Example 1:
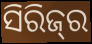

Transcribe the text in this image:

ସିରିଜ୍‌ର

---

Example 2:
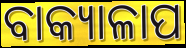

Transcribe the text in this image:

ବାକ୍ୟାଳାପ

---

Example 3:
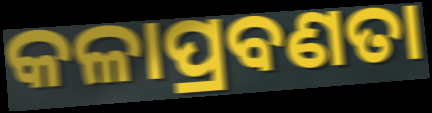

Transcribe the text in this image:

କଳାପ୍ରବଣତା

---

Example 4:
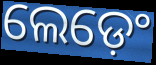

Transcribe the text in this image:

ଲେଡ଼େଂ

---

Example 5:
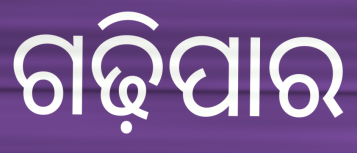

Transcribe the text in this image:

ଗଢ଼ିପାର